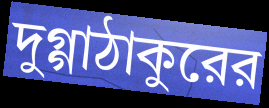
দুগ্গাঠাকুরের